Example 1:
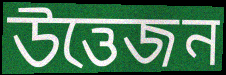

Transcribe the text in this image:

উত্তেজন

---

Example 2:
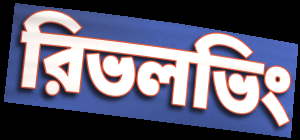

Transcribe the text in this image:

রিভলভিং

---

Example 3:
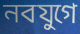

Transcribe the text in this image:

নবযুগে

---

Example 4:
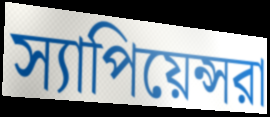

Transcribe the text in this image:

স্যাপিয়েন্সরা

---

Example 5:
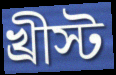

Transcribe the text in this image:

খ্রীস্ট